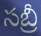
సబ్రీ